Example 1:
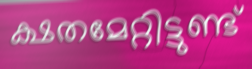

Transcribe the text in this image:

ക്ഷതമേറ്റിട്ടുണ്ട്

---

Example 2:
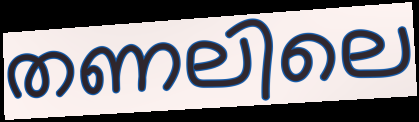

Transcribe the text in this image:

തണലിലെ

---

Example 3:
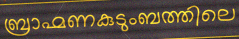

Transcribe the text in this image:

ബ്രാഹ്മണകുടുംബത്തിലെ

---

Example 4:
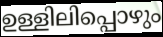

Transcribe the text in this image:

ഉള്ളിലിപ്പൊഴും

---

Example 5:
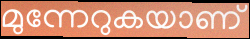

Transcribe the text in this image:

മുന്നേറുകയാണ്